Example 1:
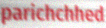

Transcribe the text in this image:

parichchhed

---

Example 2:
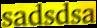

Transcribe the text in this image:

sadsdsa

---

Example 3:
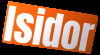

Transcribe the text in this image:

Isidor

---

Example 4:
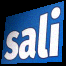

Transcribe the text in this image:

sali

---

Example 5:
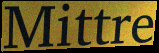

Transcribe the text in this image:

Mittre